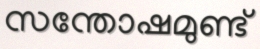
സന്തോഷമുണ്ട്